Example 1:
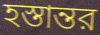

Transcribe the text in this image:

হস্তান্তর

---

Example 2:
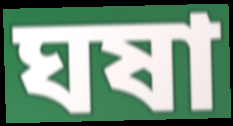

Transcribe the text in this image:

ঘষা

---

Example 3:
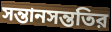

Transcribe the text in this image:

সন্তানসন্ততির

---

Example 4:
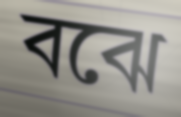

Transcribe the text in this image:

বঝে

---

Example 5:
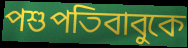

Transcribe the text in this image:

পশুপতিবাবুকে